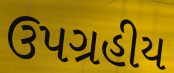
ઉપગ્રહીય